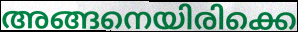
അങ്ങനെയിരിക്കെ